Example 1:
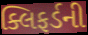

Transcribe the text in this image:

ક્લિફર્ડની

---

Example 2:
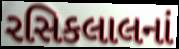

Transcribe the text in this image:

રસિકલાલનાં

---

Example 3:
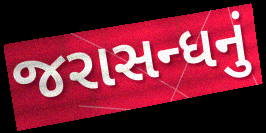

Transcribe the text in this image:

જરાસન્ધનું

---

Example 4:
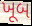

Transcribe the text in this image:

ખૂબ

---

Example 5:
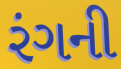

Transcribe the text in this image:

રંગની